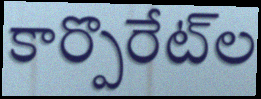
కార్పొరేట్‌ల